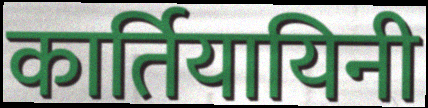
कार्तियायिनी